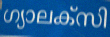
ഗ്യാലക്സി